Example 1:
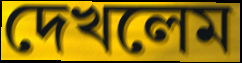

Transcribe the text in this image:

দেখলেম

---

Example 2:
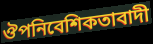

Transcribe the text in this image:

ঔপনিবেশিকতাবাদী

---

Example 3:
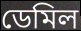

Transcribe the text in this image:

ডেমিল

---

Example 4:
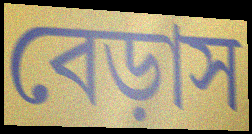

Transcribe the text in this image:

বেড়াস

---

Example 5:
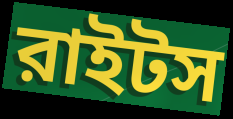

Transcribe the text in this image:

রাইটস